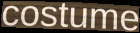
costume